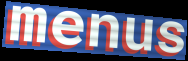
menus